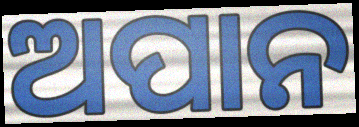
ଅପାନ